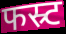
फस्र्ट